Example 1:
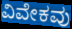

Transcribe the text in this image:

ವಿವೇಕವು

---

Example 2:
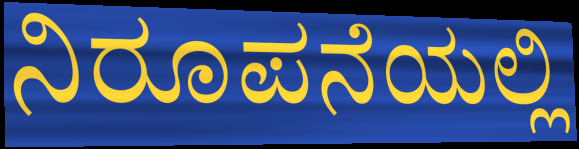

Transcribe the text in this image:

ನಿರೂಪನೆಯಲ್ಲಿ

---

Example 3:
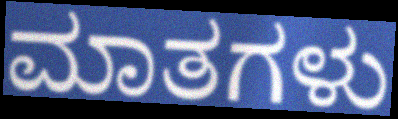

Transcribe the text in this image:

ಮಾತಗಳು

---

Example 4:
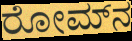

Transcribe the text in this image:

ರೋಮ್‌ನ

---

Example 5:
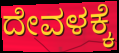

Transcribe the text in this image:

ದೇವಳಕ್ಕೆ